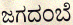
ಜಗದಂಬೆ